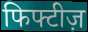
फिफ्टीज़